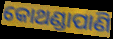
କୋଥଣ୍ଡାପାଣି